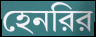
হেনরির